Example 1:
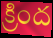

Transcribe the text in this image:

క్రింద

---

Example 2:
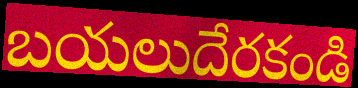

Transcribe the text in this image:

బయలుదేరకండి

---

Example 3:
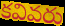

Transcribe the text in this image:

కవివరు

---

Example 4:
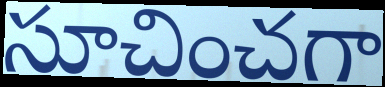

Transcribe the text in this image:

సూచించగా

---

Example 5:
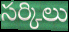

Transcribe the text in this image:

సర్కిలు